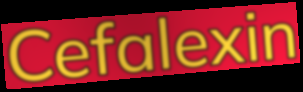
Cefalexin